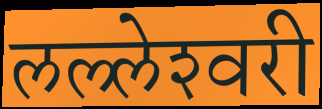
लल्लेश्वरी